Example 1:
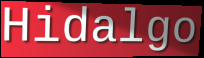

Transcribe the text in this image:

Hidalgo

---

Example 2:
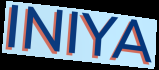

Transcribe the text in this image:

INIYA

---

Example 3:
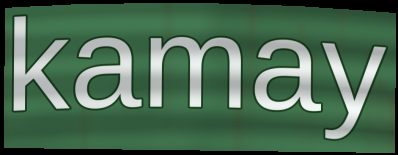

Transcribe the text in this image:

kamay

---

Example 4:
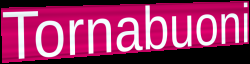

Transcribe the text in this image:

Tornabuoni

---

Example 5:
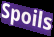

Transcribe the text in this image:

Spoils